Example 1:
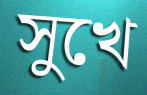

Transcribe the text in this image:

সুখে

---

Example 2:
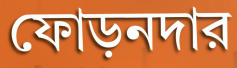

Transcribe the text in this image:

ফোড়নদার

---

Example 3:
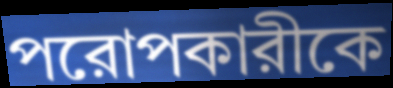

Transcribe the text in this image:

পরোপকারীকে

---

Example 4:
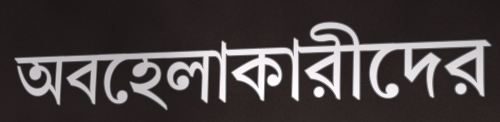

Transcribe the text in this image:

অবহেলাকারীদের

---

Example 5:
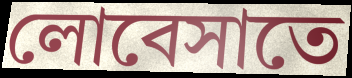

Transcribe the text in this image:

লোবেসাতে